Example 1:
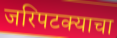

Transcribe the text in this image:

जरिपटक्याचा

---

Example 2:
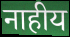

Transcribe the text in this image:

नाहीय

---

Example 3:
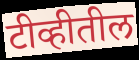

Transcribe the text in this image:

टीव्हीतील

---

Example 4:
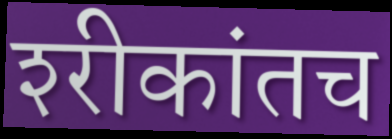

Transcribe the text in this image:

श्रीकांतच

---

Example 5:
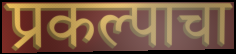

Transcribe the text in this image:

प्रकल्पाचा